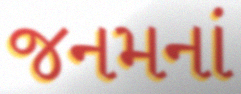
જનમનાં